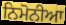
ਨਿਮੋਨੀਆ